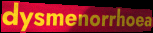
dysmenorrhoea